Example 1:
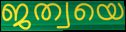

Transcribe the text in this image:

ജത്വയെ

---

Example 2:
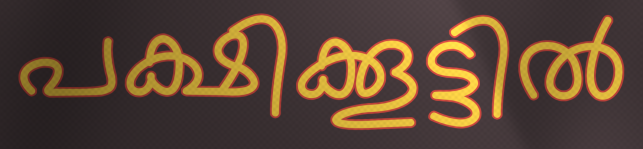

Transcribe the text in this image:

പക്ഷിക്കൂട്ടിൽ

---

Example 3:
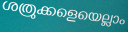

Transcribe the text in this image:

ശത്രുക്കളെയെല്ലാം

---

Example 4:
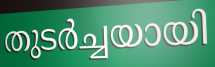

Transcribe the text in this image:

തുടർച്ചയായി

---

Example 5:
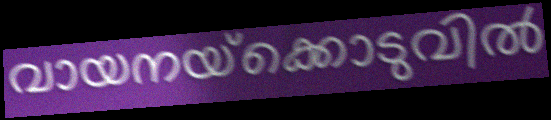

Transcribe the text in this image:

വായനയ്‌ക്കൊടുവിൽ